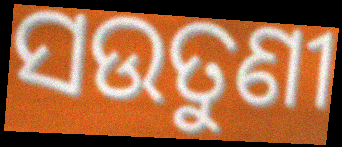
ସଉତୁଣୀ